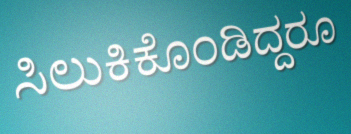
ಸಿಲುಕಿಕೊಂಡಿದ್ದರೂ